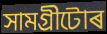
সামগ্ৰীটোৰ